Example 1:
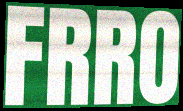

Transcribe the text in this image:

FRRO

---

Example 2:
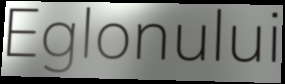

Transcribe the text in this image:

Eglonului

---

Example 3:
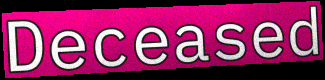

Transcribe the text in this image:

Deceased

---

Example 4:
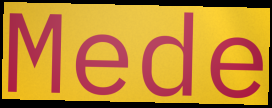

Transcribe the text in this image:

Mede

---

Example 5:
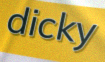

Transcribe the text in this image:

dicky